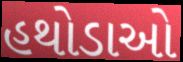
હથોડાઓ